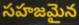
సహజమైన